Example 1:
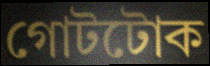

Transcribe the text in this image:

গোটটোক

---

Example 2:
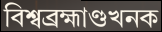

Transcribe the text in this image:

বিশ্বব্ৰহ্মাণ্ডখনক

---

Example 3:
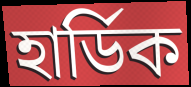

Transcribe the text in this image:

হাৰ্ডিক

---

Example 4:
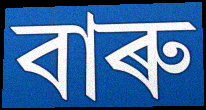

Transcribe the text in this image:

বাৰু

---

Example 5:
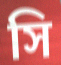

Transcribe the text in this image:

সি